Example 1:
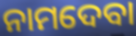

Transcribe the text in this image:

ନାମଦେବା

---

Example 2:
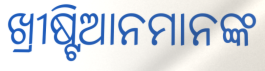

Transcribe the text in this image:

ଖ୍ରୀଷ୍ଟିଆନମାନଙ୍କ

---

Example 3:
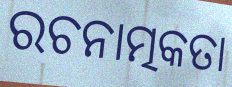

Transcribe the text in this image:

ରଚନାତ୍ମକତା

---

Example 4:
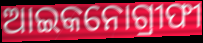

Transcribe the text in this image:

ଆଇକନୋଗ୍ରୀଫୀ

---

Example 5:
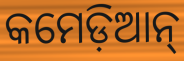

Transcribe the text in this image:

କମେଡ଼ିଆନ୍